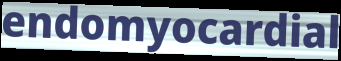
endomyocardial